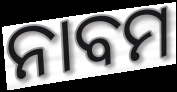
ନାବମ